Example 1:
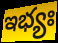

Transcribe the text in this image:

ఇభ్యః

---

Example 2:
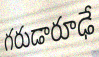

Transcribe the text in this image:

గరుడారూఢే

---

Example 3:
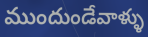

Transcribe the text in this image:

ముందుండేవాళ్ళు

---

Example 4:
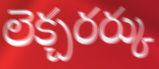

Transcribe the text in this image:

లెక్చరర్కు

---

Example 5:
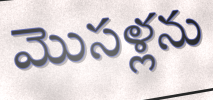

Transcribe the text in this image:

మొసళ్లను